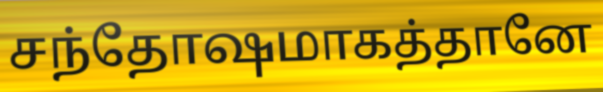
சந்தோஷமாகத்தானே